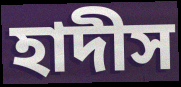
হাদীস